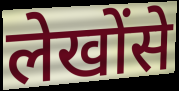
लेखोंसे